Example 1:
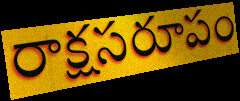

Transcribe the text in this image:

రాక్షసరూపం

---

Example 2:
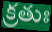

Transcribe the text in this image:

క్రతుః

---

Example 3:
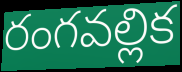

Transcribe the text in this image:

రంగవల్లిక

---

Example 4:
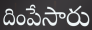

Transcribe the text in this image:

దింపేసారు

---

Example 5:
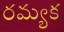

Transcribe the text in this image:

రమ్యక